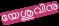
യേശുവിനു